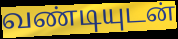
வண்டியுடன்